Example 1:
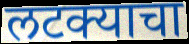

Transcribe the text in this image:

लटक्याचा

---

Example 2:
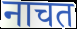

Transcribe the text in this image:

नाचत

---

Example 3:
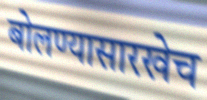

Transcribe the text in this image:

बोलण्यासारखेच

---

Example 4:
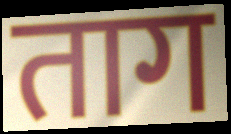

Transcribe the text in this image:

ताग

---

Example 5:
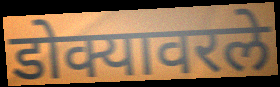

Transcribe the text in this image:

डोक्यावरले